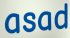
asad